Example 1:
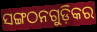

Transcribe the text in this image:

ସଙ୍ଗଠନଗୁଡ଼ିକର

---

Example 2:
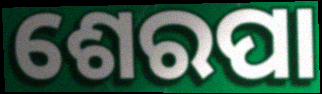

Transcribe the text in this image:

ଶେରପା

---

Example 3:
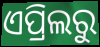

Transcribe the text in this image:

ଏପ୍ରିଲରୁ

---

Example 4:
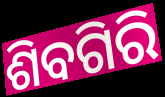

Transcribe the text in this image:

ଶିବଗିରି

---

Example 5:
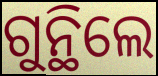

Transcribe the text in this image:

ଗୁନ୍ଥିଲେ